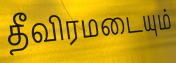
தீவிரமடையும்